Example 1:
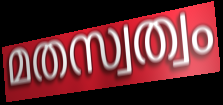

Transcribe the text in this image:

മതസ്വത്വം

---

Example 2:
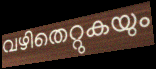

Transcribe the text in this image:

വഴിതെറ്റുകയും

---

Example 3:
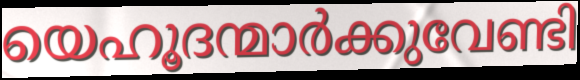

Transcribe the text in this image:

യെഹൂദന്മാർക്കുവേണ്ടി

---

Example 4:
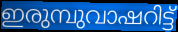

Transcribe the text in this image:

ഇരുമ്പുവാഷറിട്ട്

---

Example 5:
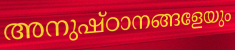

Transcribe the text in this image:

അനുഷ്ഠാനങ്ങളേയും